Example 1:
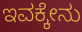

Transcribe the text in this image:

ಇವಕ್ಕೇನು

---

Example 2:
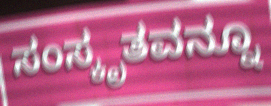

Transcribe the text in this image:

ಸಂಸ್ಕೃತವನ್ನೂ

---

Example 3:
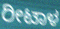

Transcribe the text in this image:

ರೀಟಾಳ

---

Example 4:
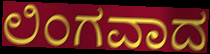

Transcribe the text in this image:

ಲಿಂಗವಾದ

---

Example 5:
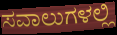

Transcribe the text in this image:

ಸವಾಲುಗಳಲ್ಲಿ